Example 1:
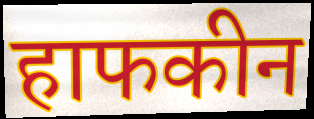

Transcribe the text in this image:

हाफकीन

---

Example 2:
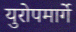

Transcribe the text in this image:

युरोपमार्गे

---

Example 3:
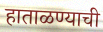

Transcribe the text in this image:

हाताळण्याची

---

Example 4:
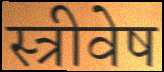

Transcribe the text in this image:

स्त्रीवेष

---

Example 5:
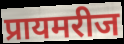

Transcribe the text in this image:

प्रायमरीज